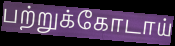
பற்றுக்கோடாய்